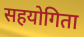
सहयोगिता